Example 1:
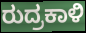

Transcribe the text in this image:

ರುದ್ರಕಾಳಿ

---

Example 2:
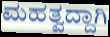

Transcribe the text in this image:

ಮಹತ್ವದ್ದಾಗಿ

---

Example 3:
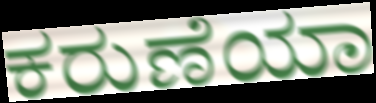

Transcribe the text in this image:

ಕರುಣೆಯಾ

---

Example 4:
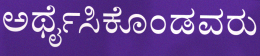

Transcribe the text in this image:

ಅರ್ಥೈಸಿಕೊಂಡವರು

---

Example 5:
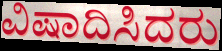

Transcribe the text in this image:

ವಿಷಾದಿಸಿದರು